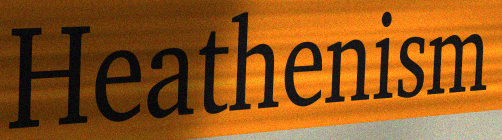
Heathenism